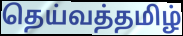
தெய்வத்தமிழ்